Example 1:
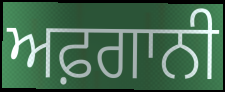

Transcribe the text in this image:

ਅਫ਼ਗਾਨੀ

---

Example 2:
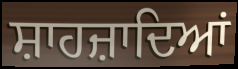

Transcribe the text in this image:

ਸ਼ਾਹਜ਼ਾਦਿਆਂ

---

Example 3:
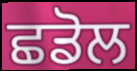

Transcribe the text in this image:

ਛਡੋਲ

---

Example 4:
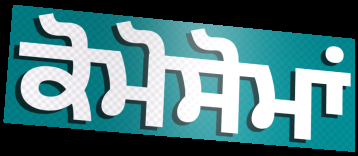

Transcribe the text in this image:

ਕੋਮੋਸੋਮਾਂ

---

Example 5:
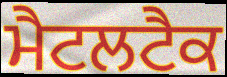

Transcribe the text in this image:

ਮੈਟਲਟੈਕ